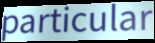
particular